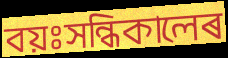
বয়ঃসন্ধিকালেৰ